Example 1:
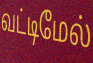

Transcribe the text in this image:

வட்டிமேல்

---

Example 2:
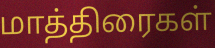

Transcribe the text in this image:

மாத்திரைகள்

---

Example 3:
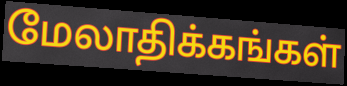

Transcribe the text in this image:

மேலாதிக்கங்கள்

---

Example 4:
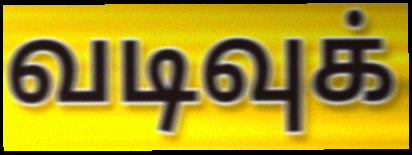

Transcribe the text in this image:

வடிவுக்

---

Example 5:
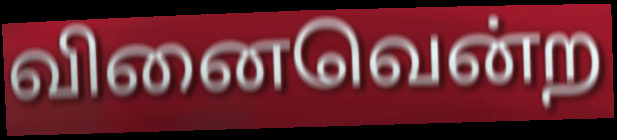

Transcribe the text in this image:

வினைவென்ற